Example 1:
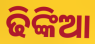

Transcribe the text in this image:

ଢିଙ୍କିଆ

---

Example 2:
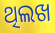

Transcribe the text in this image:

ଥିଲଖ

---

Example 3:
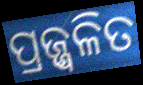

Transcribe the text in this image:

ପ୍ରଜ୍ଜ୍ବଳିତ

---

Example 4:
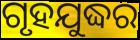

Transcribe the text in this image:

ଗୃହଯୁଦ୍ଧର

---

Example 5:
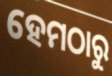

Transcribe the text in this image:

ହେମଠାରୁ